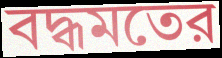
বদ্ধমতের